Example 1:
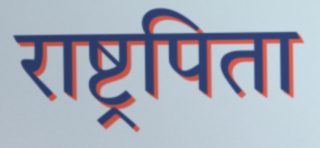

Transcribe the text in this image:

राष्ट्रपिता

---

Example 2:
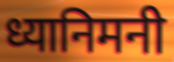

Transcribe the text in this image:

ध्यानिमनी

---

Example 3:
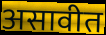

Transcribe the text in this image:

असावीत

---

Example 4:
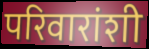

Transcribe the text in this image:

परिवारांशी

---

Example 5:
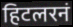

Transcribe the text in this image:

हिटलरनं